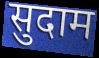
सुदाम